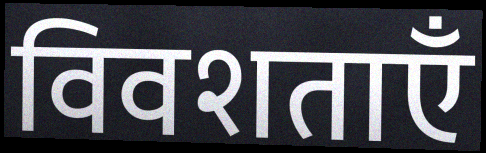
विवशताएँ